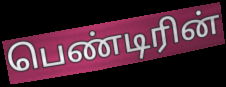
பெண்டிரின்